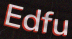
Edfu